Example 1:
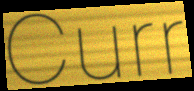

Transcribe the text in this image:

Curr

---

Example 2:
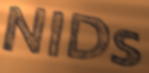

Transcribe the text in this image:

NIDs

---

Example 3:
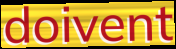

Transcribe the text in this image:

doivent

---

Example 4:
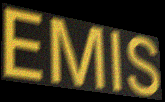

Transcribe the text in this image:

EMIS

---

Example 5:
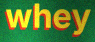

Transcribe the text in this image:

whey